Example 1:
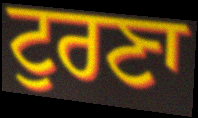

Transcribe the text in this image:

ਟੁਰਣਾ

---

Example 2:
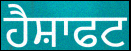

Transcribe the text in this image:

ਹੈਸ਼ਾਫਟ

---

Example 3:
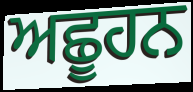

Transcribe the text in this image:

ਅਛੂਹਨ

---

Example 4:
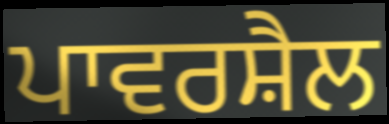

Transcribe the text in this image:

ਪਾਵਰਸ਼ੈਲ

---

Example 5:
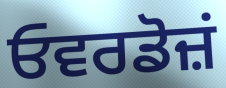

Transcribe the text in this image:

ਓਵਰਡੋਜ਼ਂ